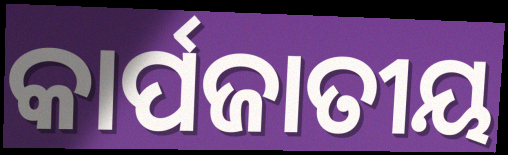
କାର୍ପଜାତୀୟ